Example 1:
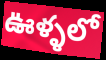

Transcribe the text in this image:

ఊళ్ళలో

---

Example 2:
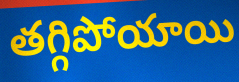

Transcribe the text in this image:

తగ్గిపోయాయి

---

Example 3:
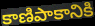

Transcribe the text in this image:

కాణిపాకానికి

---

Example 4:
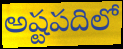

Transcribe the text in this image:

అష్టపదిలో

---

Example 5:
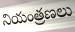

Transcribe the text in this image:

నియంత్రణలు